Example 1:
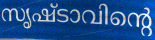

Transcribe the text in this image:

സൃഷ്ടാവിന്റെ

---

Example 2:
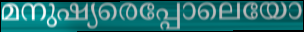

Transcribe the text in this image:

മനുഷ്യരെപ്പോലെയോ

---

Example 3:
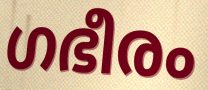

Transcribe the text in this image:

ഗഭീരം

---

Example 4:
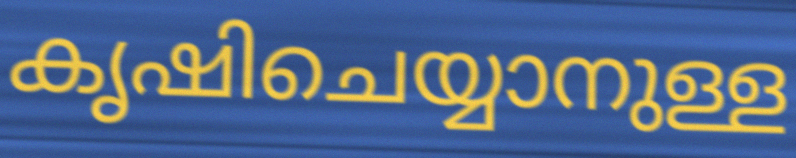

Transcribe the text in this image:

കൃഷിചെയ്യാനുള്ള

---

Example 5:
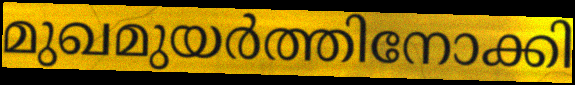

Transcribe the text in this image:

മുഖമുയർത്തിനോക്കി